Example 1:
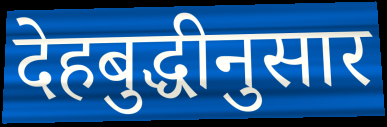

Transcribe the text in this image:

देहबुद्धीनुसार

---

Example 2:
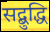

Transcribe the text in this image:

सद्बुद्धि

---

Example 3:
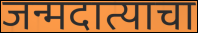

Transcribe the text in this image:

जन्मदात्याचा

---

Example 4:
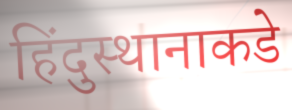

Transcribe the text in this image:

हिंदुस्थानाकडे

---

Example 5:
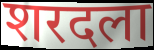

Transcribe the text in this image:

शरदला